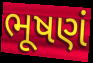
ભૂષણં